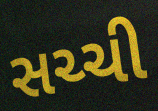
સચ્ચી